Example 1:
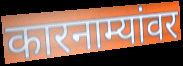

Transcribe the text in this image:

कारनाम्यांवर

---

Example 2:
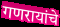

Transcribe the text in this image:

गणरायांचे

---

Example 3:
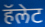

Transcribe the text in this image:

हॅलेट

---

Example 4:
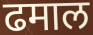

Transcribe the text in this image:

ढमाल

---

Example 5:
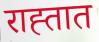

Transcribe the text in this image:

राह्तात